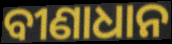
ବୀଣାଧାନ